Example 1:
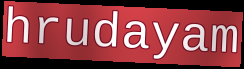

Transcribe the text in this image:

hrudayam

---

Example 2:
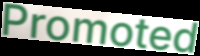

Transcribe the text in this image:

Promoted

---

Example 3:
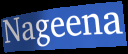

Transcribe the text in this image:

Nageena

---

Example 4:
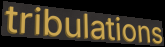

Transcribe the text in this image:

tribulations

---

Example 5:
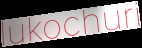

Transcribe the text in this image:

lukochuri